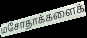
மசோதாக்களைக்